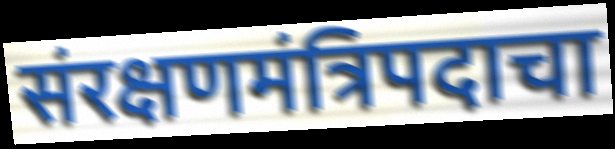
संरक्षणमंत्रिपदाचा